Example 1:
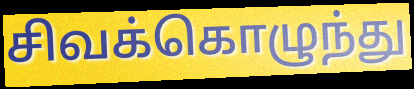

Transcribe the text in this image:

சிவக்கொழுந்து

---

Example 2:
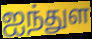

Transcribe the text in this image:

ஐந்துள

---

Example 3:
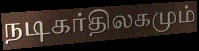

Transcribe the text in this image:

நடிகர்திலகமும்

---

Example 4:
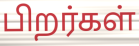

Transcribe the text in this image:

பிறர்கள்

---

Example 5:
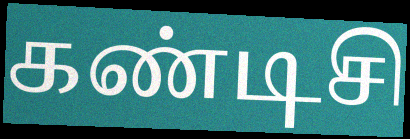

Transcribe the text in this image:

கண்டிசி